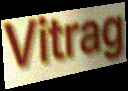
Vitrag